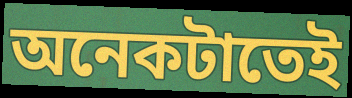
অনেকটাতেই